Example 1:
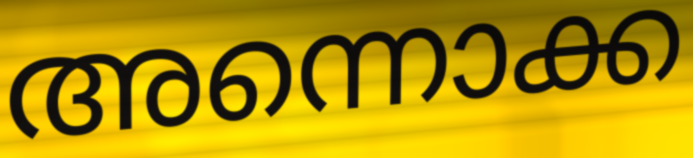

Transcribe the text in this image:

അന്നൊക്ക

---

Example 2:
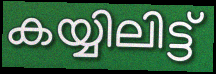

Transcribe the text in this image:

കയ്യിലിട്ട്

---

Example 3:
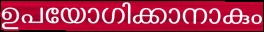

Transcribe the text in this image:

ഉപയോഗിക്കാനാകും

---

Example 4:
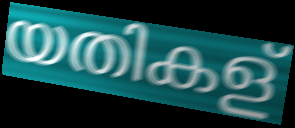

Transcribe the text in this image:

യതികള്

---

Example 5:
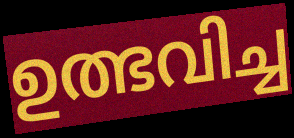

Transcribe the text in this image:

ഉത്ഭവിച്ച